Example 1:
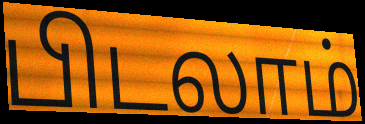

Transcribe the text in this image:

பிடலாம்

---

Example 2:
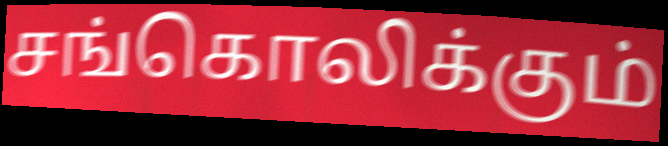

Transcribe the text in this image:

சங்கொலிக்கும்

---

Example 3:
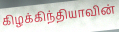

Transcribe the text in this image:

கிழக்கிந்தியாவின்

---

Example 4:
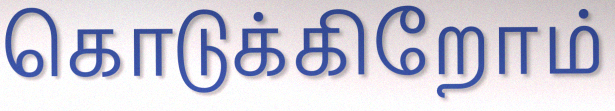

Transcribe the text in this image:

கொடுக்கிறோம்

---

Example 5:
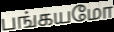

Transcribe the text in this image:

பங்கயமோ